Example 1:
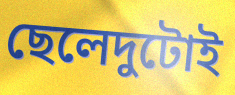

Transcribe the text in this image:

ছেলেদুটোই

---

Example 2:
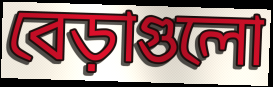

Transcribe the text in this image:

বেড়াগুলো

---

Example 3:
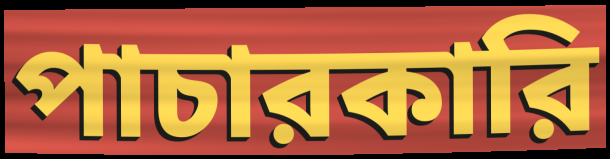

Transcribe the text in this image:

পাচারকারি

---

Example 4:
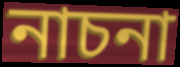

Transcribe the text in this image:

নাচনা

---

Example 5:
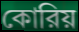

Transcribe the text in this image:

কোরিয়